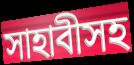
সাহাবীসহ